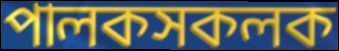
পালকসকলক